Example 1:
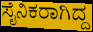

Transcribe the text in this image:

ಸೈನಿಕರಾಗಿದ್ದ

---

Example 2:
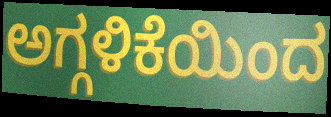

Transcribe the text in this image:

ಅಗ್ಗಳಿಕೆಯಿಂದ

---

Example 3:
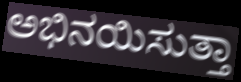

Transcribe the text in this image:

ಅಭಿನಯಿಸುತ್ತಾ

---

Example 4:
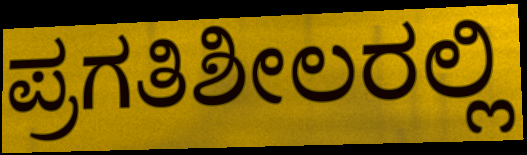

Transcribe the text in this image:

ಪ್ರಗತಿಶೀಲರಲ್ಲಿ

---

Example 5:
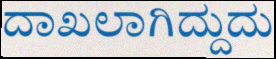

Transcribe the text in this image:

ದಾಖಲಾಗಿದ್ದುದು